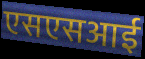
एसएसआई